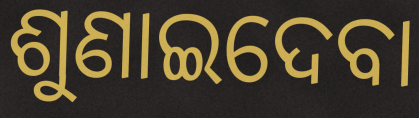
ଶୁଣାଇଦେବା